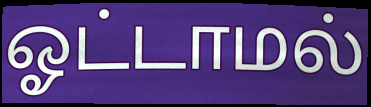
ஓட்டாமல்